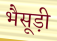
भैसूड़ी